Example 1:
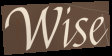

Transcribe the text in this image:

Wise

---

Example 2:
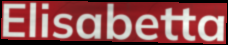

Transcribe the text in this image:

Elisabetta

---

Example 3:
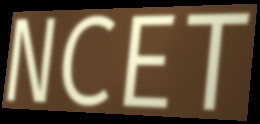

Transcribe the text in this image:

NCET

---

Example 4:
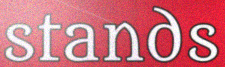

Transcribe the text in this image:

stands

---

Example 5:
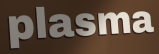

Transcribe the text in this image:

plasma